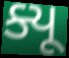
ક્યૂ